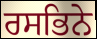
ਰਸਭਿਨੇ